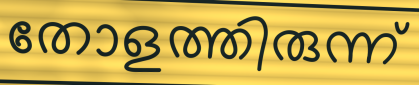
തോളത്തിരുന്ന്